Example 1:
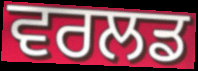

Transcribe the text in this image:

ਵਰਲਡ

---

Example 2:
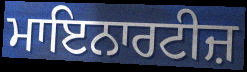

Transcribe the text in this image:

ਮਾਇਨਾਰਟੀਜ਼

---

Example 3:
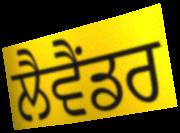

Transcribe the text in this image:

ਲੈਵੈਂਡਰ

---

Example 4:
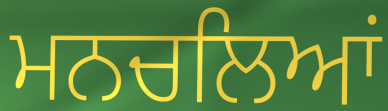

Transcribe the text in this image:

ਮਨਚਲਿਆਂ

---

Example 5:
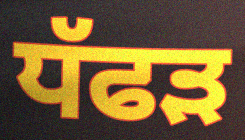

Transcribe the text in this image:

ਧੱਫੜ